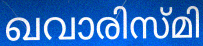
ഖവാരിസ്മി